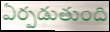
ఏర్పడుతుంది